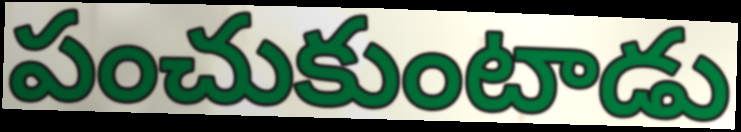
పంచుకుంటాడు